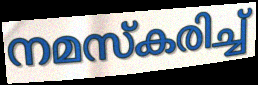
നമസ്കരിച്ച്